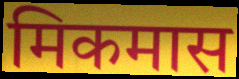
मिकमास